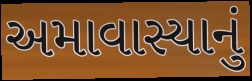
અમાવાસ્યાનું